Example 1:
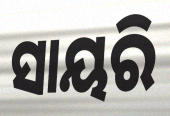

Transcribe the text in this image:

ସାୟରି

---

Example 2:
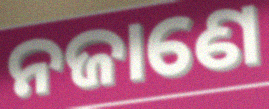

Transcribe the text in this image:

ନଜାଣେ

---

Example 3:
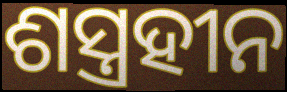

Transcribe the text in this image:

ଶସ୍ତ୍ରହୀନ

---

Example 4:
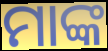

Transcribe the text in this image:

ମାଙ୍କ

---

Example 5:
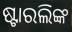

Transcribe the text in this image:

ଷ୍ଟାରଲିଙ୍କ